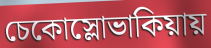
চেকোস্লোভাকিয়ায়